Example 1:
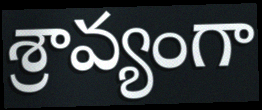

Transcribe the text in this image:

శ్రావ్యంగా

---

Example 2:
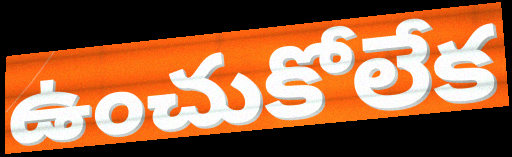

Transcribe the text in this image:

ఉంచుకోలేక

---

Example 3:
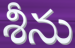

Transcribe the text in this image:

శీను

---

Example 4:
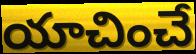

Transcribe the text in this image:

యాచించే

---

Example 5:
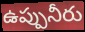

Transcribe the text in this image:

ఉప్పునీరు